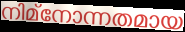
നിമ്നോന്നതമായ